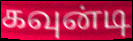
கவுன்டி